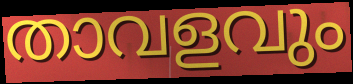
താവളവും